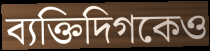
ব্যক্তিদিগকেও